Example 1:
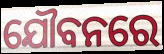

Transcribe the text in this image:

ଯୌବନରେ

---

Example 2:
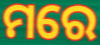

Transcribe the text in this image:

ମରେ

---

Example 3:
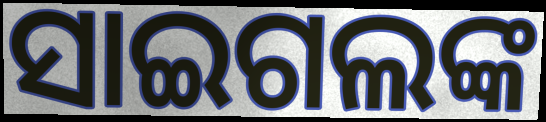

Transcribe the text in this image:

ସାଇଗଲଙ୍କ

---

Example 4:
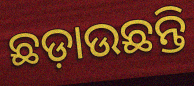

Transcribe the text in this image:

ଛଡ଼ାଉଛନ୍ତି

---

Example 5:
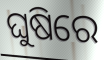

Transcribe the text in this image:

ଘୁଷିରେ